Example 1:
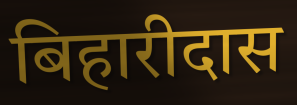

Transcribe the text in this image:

बिहारीदास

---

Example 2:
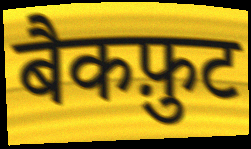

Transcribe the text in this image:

बैकफ़ुट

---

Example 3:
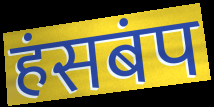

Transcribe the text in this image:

हंसबंप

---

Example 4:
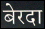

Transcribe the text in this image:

बेरदा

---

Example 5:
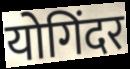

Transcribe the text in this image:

योगिंदर